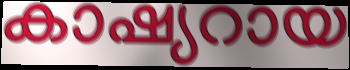
കാഷ്യറായ